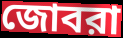
জোবরা